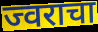
ज्वराचा